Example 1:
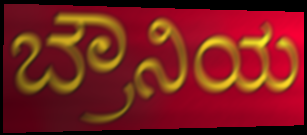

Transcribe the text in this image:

ಬ್ರೌನಿಯ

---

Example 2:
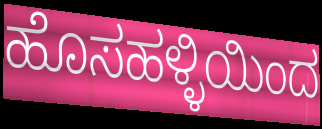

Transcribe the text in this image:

ಹೊಸಹಳ್ಳಿಯಿಂದ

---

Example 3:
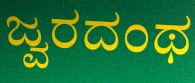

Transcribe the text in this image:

ಜ್ವರದಂಥ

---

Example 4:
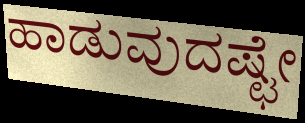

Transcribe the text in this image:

ಹಾಡುವುದಷ್ಟೇ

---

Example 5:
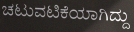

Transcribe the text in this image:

ಚಟುವಟಿಕೆಯಾಗಿದ್ದು